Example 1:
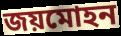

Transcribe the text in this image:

জয়মোহন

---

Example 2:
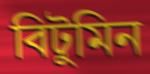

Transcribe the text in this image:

বিটুমিন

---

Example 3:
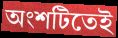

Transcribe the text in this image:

অংশটিতেই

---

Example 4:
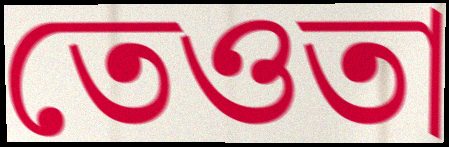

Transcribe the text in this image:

তেওতা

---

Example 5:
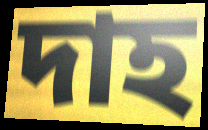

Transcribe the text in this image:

দাহ